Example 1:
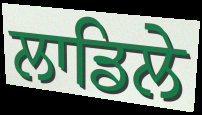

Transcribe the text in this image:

ਲਾਡਿਲੇ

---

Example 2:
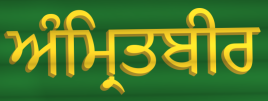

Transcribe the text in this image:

ਅੰਮ੍ਰਿਤਬੀਰ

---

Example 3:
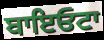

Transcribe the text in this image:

ਬਾਇਓਟਾ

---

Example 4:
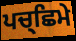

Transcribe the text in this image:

ਪਚ੍ਛਿਮੇ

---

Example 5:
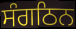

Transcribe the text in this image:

ਸੰਗਠਿਨ